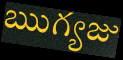
ఋగ్యజు